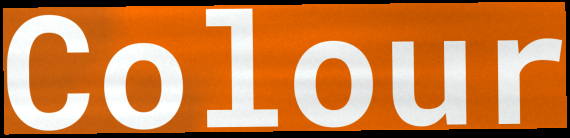
Colour